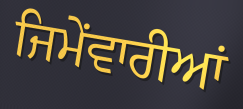
ਜਿਮੇਂਵਾਰੀਆਂ